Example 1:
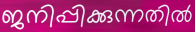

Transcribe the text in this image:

ജനിപ്പിക്കുന്നതിൽ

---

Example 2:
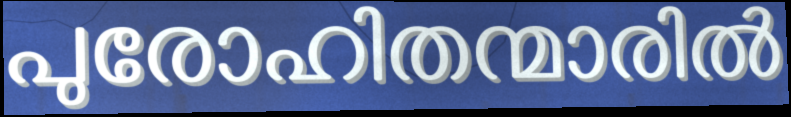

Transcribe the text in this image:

പുരോഹിതന്മാരിൽ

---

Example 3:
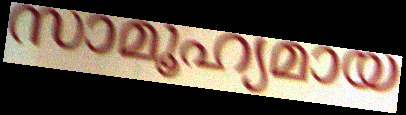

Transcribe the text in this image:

സാമൂഹ്യമായ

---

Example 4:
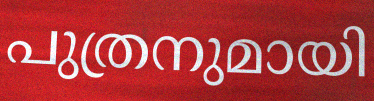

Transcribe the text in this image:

പുത്രനുമായി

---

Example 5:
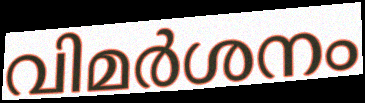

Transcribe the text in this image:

വിമർശനം